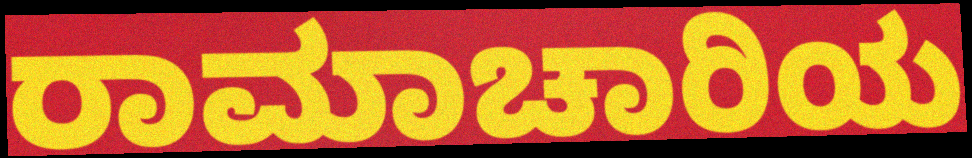
ರಾಮಾಚಾರಿಯ